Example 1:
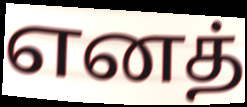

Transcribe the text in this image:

எனத்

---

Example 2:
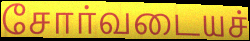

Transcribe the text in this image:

சோர்வடையச்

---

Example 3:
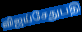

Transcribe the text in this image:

விஜய்சேதுபதி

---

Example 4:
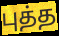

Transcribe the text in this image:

புத்த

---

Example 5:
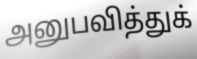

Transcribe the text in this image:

அனுபவித்துக்